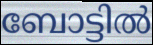
ബോട്ടിൽ